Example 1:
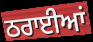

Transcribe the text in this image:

ਠਰਾਈਆਂ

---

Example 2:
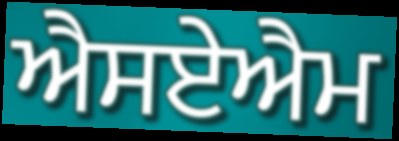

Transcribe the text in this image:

ਐਸਏਐਮ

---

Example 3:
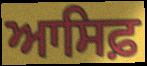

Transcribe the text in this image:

ਆਸਿਫ਼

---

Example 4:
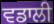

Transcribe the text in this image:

ਵਡਾਲੀ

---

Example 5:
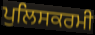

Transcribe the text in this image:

ਪੁਲਿਸਕਰਮੀ